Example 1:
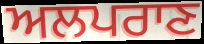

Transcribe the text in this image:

ਅਲਪਰਾਣ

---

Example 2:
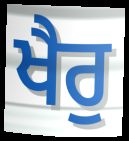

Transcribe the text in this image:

ਖੈਰੁ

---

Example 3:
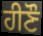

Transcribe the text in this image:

ਹੀਣੌ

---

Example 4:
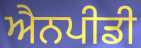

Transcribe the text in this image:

ਐਨਪੀਡੀ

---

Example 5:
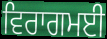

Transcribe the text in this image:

ਵਿਰਾਗਮਈ